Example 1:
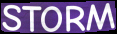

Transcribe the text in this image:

STORM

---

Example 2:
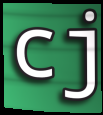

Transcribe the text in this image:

cj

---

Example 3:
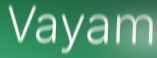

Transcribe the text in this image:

Vayam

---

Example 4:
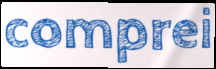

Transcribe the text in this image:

comprei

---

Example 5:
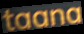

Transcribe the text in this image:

taana